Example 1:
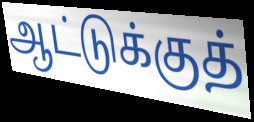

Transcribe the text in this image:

ஆட்டுக்குத்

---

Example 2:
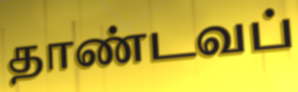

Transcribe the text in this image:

தாண்டவப்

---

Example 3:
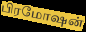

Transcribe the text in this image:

பிரமோஷன்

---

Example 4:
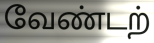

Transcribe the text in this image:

வேண்டற்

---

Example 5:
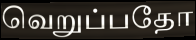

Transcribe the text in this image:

வெறுப்பதோ